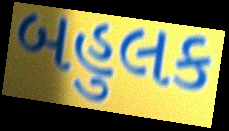
બહુલક